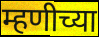
म्हणीच्या